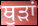
ਥੁੜਾਂ